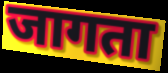
जागता